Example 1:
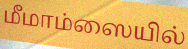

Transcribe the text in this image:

மீமாம்ஸையில்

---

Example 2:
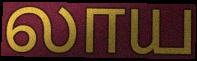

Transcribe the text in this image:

லாய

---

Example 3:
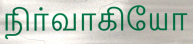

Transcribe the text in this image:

நிர்வாகியோ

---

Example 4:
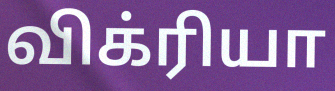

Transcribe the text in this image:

விக்ரியா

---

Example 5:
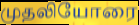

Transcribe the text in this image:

முதலியோரை